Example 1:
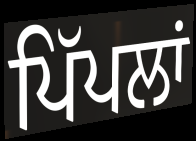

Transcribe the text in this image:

ਪਿੱਪਲਾਂ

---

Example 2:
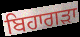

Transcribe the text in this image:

ਬਿਹਾਗੜਾ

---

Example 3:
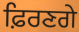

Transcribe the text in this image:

ਫ਼ਿਰਣਗੇ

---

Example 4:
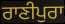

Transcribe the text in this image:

ਰਾਣੀਪੁਰਾ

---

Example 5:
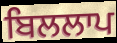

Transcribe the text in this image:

ਬਿਲਲਾਪ